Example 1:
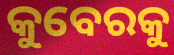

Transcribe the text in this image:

କୁବେରକୁ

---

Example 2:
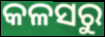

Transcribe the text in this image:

କଳସରୁ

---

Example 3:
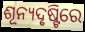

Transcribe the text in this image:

ଶୂନ୍ୟଦୃଷ୍ଟିରେ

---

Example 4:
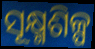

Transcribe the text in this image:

ସୂକ୍ଷ୍ମଶିଳ୍ପ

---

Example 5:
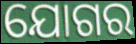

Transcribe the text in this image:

ଯୋଗର